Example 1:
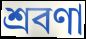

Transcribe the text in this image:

শ্রবণা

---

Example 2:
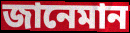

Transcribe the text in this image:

জানেমান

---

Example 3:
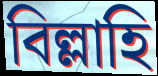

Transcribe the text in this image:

বিল্লাহি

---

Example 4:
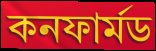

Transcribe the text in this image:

কনফার্মড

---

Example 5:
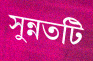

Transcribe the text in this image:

সুন্নতটি